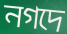
নগদে